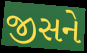
જીસને